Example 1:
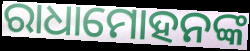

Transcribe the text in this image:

ରାଧାମୋହନଙ୍କ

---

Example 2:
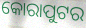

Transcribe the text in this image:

କୋରାପୁଟର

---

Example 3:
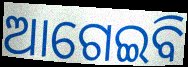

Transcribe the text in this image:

ଆଗେଇବି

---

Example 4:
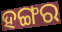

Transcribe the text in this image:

ହଙ୍ଗର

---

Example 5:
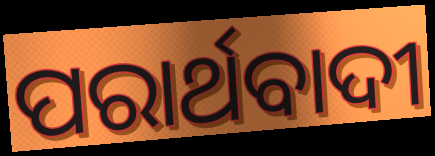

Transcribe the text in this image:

ପରାର୍ଥବାଦୀ